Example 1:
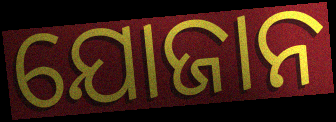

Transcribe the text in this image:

ଯୋଜାନ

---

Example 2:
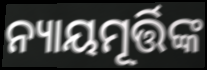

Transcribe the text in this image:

ନ୍ୟାୟମୂର୍ତ୍ତିଙ୍କ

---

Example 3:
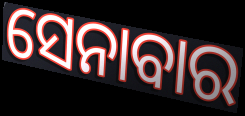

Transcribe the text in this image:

ସେନାବାର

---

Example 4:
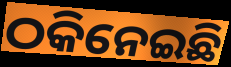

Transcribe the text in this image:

ଠକିନେଇଛି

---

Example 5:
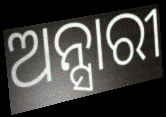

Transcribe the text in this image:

ଅନ୍ସାରୀ